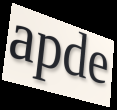
apde